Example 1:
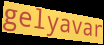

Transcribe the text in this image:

gelyavar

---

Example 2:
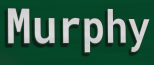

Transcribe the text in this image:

Murphy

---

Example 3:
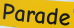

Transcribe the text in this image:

Parade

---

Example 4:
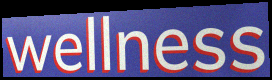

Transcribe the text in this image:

wellness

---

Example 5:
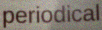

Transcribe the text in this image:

periodical